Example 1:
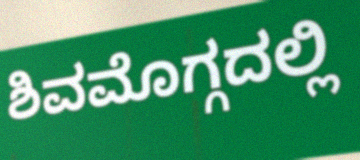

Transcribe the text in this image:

ಶಿವಮೊಗ್ಗದಲ್ಲಿ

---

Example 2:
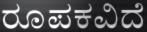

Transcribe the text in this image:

ರೂಪಕವಿದೆ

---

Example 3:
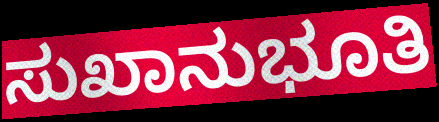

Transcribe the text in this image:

ಸುಖಾನುಭೂತಿ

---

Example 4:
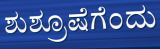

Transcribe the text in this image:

ಶುಶ್ರೂಷೆಗೆಂದು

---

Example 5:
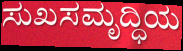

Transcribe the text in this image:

ಸುಖಸಮೃದ್ಧಿಯ